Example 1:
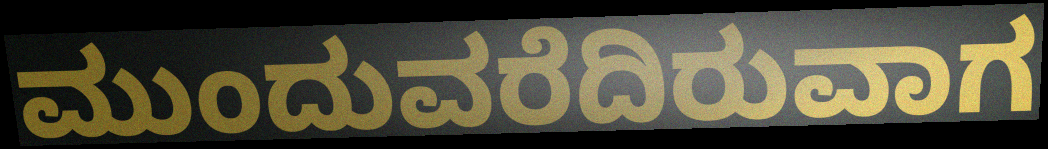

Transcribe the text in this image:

ಮುಂದುವರೆದಿರುವಾಗ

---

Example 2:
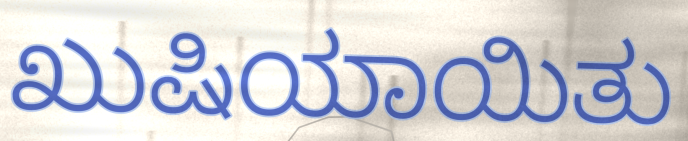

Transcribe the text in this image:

ಖುಷಿಯಾಯಿತು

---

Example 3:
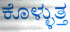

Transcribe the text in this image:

ಕೊಳ್ಳುತ್ತ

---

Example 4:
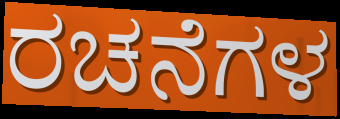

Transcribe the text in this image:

ರಚನೆಗಳ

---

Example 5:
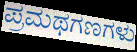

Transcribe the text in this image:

ಪ್ರಮಥಗಣಗಳು